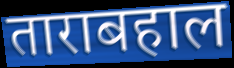
ताराबहाल